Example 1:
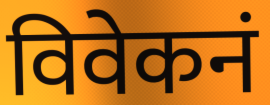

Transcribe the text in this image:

विवेकनं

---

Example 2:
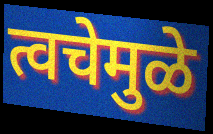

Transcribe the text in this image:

त्वचेमुळे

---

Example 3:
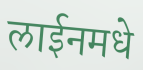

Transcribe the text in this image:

लाईनमधे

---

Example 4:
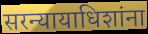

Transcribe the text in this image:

सरन्यायाधिशांना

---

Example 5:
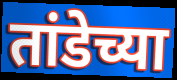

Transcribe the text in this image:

तांडेच्या